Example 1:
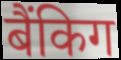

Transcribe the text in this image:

बैंकिग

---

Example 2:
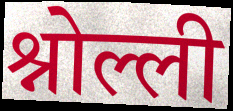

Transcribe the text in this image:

श्नोल्ली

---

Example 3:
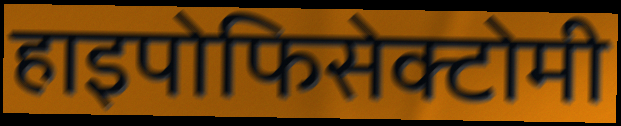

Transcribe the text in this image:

हाइपोफिसेक्टोमी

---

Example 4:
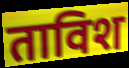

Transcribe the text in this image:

ताविश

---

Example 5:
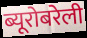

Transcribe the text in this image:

ब्यूरोबरेली